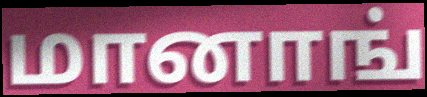
மானாங்